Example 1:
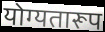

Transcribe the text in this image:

योग्यतारूप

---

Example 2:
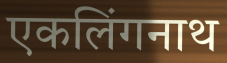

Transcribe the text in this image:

एकलिंगनाथ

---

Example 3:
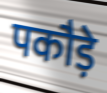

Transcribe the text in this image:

पकौड़े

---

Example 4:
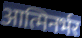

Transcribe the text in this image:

आत्मिनर्भर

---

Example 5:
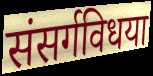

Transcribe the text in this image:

संसर्गविधया